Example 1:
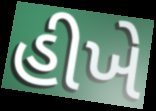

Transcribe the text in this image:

હીખે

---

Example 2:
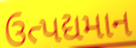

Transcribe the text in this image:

ઉત્પદ્યમાન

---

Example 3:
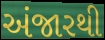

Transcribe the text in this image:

અંજારથી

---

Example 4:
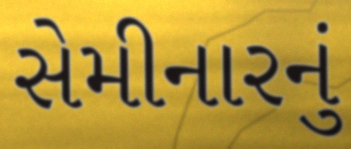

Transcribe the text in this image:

સેમીનારનું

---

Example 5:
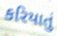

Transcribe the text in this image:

કરિયાતું